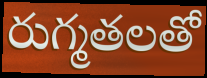
రుగ్మతలతో